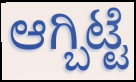
ಆಗ್ಬಿಟ್ಟೆ